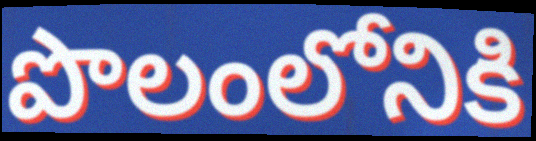
పొలంలోనికి